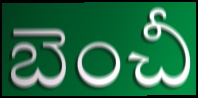
బెంచీ